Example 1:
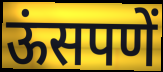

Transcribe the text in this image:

ऊंसपणें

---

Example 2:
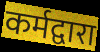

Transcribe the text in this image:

कर्मद्वारा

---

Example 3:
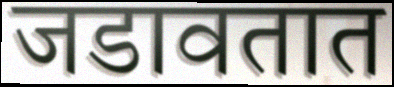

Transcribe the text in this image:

जडावतात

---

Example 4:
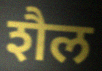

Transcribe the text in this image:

शैल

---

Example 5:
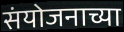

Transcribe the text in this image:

संयोजनाच्या